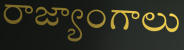
రాజ్యాంగాలు